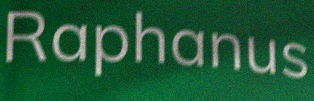
Raphanus